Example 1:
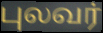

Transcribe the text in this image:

புலவர்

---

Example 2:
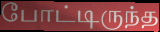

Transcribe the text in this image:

போட்டிருந்த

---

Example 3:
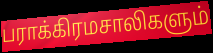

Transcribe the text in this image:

பராக்கிரமசாலிகளும்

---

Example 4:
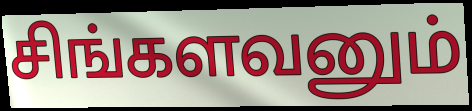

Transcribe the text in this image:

சிங்களவனும்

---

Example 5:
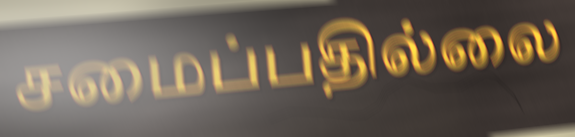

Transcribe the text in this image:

சமைப்பதில்லை